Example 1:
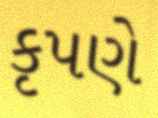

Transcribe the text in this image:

કૃપણે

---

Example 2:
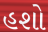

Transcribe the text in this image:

હશો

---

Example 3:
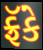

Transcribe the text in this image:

ફ્રૅંકે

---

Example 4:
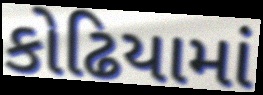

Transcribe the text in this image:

કોઢિયામાં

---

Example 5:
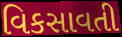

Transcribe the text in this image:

વિકસાવતી